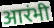
आरंभी